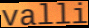
valli